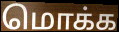
மொக்க